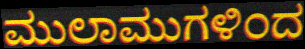
ಮುಲಾಮುಗಳಿಂದ